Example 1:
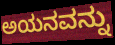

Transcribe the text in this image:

ಅಯನವನ್ನು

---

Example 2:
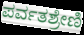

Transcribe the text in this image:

ಪರ್ವತಶ್ರೇಣಿ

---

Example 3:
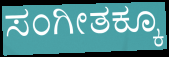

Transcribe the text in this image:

ಸಂಗೀತಕ್ಕೂ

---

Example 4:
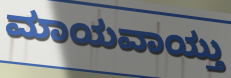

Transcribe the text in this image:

ಮಾಯವಾಯ್ತು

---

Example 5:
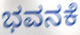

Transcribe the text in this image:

ಭವನಕೆ